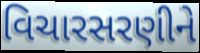
વિચારસરણીને